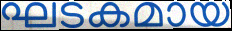
ഘടകമായ